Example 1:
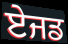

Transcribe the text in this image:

ਏਜਡ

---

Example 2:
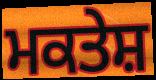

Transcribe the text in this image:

ਮਕਤੇਸ਼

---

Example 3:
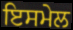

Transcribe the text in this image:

ਇਸਮੇਲ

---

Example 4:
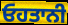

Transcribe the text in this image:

ਓਹਤਾਨੀ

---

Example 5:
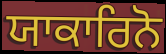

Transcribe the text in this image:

ਯਾਕਾਰਿਨੋ